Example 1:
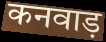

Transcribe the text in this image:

कनवाड़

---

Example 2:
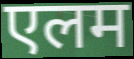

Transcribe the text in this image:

एलम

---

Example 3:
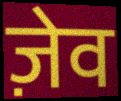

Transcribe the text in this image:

ज़ेव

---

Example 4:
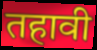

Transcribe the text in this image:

तहावी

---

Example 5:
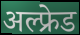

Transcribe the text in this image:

अल्फ्रेड